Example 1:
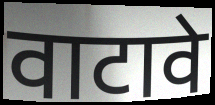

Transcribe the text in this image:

वाटावे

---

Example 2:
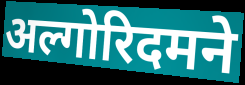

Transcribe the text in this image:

अल्गोरिदमने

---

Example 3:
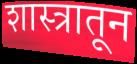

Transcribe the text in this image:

शास्त्रातून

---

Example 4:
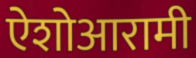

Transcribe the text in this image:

ऐशोआरामी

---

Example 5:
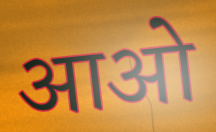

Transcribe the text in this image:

आओ